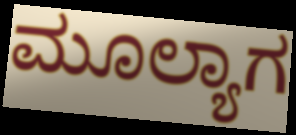
ಮೂಲ್ಯಾಗ